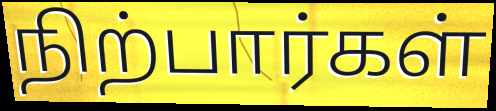
நிற்பார்கள்